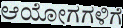
ಆಯೋಗಗಳಿಗೆ